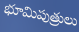
భూమిపుత్రులు